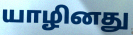
யாழினது